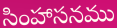
సింహాసనము